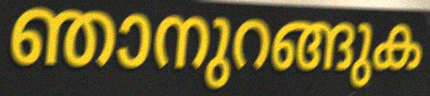
ഞാനുറങ്ങുക